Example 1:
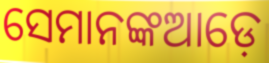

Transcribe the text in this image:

ସେମାନଙ୍କଆଡ଼େ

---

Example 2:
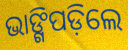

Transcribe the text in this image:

ଭାଙ୍ଗିପଡ଼ିଲେ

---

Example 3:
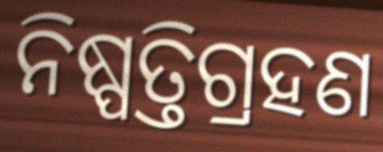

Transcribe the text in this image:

ନିଷ୍ପତ୍ତିଗ୍ରହଣ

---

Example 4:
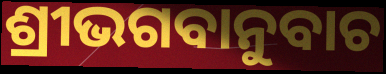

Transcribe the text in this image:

ଶ୍ରୀଭଗବାନୁବାଚ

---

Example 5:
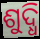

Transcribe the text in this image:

ଶୁଦ୍ଧି